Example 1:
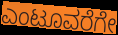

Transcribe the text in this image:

ಎಂಟೂವರೆಗೇ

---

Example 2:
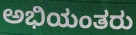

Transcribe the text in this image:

ಅಭಿಯಂತರು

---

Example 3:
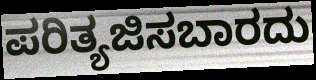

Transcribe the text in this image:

ಪರಿತ್ಯಜಿಸಬಾರದು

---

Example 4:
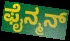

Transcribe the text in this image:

ಫೈನ್ಮನ್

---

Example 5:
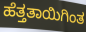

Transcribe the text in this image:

ಹೆತ್ತತಾಯಿಗಿಂತ